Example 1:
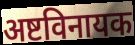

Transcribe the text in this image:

अष्टविनायक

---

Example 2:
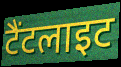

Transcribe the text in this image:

टैंटलाइट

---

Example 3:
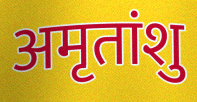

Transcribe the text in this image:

अमृतांशु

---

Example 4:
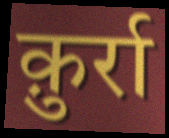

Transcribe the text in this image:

क़ुर्रा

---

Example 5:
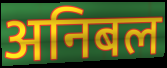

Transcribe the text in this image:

अनिबल